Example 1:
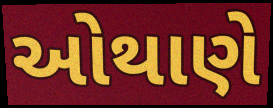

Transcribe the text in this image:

ઓથાણે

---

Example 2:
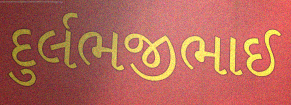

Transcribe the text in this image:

દુર્લભજીભાઈ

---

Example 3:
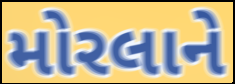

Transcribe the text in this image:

મોરલાને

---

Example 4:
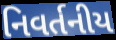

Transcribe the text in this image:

નિવર્તનીય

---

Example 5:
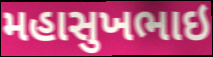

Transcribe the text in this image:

મહાસુખભાઇ